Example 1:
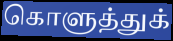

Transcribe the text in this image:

கொளுத்துக்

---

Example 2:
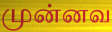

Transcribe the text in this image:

முன்னவ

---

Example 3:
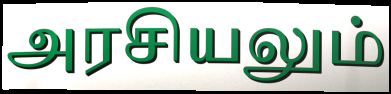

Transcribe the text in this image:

அரசியலும்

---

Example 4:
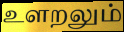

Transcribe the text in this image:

உளறலும்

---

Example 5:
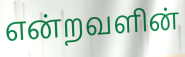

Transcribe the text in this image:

என்றவளின்